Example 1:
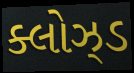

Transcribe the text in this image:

ક્લોઝ્ડ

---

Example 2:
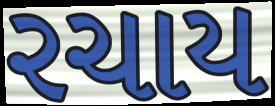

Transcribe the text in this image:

રચાય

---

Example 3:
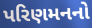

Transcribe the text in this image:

પરિણમનનો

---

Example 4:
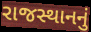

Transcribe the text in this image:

રાજસ્થાનનું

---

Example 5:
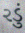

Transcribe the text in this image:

રડું